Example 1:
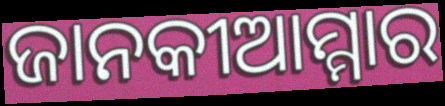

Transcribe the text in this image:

ଜାନକୀଆମ୍ମାର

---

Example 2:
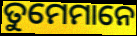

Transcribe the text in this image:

ତୁମେମାନେ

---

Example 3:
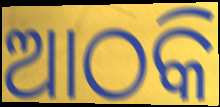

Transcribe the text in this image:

ଆଠକି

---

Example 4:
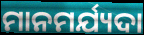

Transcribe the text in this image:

ମାନମର୍ଯ୍ୟଦା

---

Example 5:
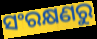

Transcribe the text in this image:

ସଂରକ୍ଷଣରୁ